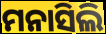
ମନାସିଲି